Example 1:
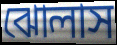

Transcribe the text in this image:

ঝোলাস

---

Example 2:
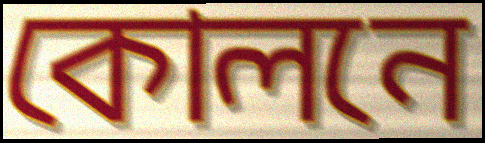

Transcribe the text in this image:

কোলনে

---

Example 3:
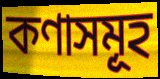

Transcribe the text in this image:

কণাসমূহ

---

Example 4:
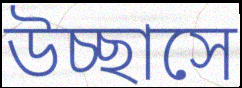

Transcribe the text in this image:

উচ্ছাসে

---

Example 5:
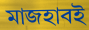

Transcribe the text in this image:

মাজহাবই